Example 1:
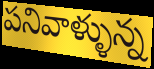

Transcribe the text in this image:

పనివాళ్ళున్న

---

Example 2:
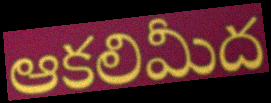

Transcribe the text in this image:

ఆకలిమీద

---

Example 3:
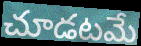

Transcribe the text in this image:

చూడటమే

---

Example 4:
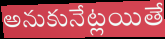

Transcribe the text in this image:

అనుకునేట్లయితే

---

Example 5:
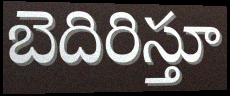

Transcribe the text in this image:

బెదిరిస్తూ